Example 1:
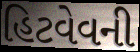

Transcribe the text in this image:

હિટવેવની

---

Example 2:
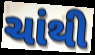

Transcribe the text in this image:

ચાંથી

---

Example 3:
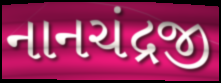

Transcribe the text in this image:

નાનચંદ્રજી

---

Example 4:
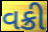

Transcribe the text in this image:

વક્રી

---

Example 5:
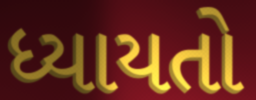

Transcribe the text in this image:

ધ્યાયતો